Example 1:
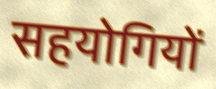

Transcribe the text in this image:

सहयोगियों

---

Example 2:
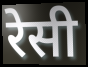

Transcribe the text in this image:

रेसी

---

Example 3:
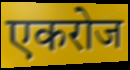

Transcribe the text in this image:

एकरोज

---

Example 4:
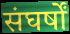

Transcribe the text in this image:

संघर्षों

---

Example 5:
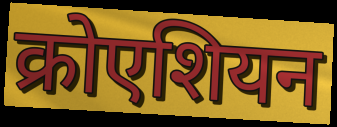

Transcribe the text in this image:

क्रोएशियन